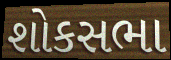
શોકસભા